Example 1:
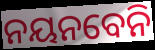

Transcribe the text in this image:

ନୟନବେନି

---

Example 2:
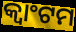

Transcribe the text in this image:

କ୍ୱାଂଟମ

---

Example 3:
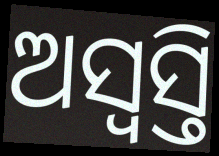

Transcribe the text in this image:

ଅସ୍ୱସ୍ତି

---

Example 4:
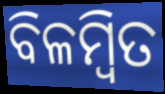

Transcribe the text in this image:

ବିଳମ୍ବିତ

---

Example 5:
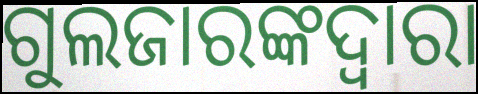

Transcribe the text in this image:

ଗୁଲଜାରଙ୍କଦ୍ୱାରା